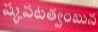
ష్కపటత్వంబున